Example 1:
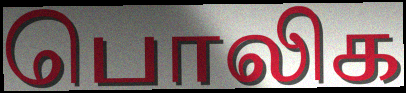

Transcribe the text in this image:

பொலிக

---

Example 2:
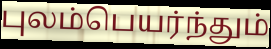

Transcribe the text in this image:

புலம்பெயர்ந்தும்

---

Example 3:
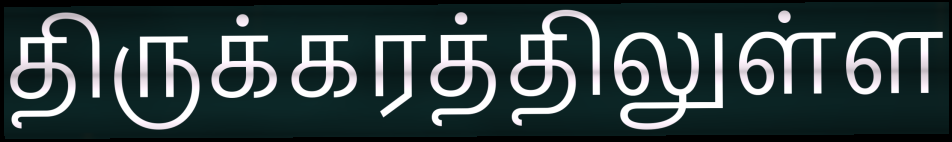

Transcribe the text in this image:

திருக்கரத்திலுள்ள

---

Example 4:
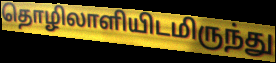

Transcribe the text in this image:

தொழிலாளியிடமிருந்து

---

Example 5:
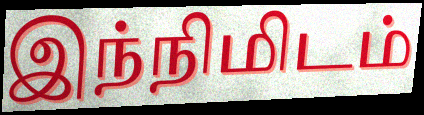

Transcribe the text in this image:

இந்நிமிடம்